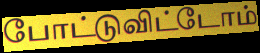
போட்டுவிட்டோம்